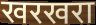
खरखरा